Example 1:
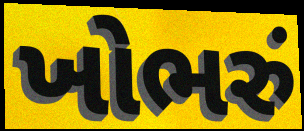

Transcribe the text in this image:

ખોભરું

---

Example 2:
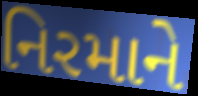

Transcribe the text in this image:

નિરમાને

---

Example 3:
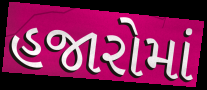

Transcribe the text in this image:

હજારોમાં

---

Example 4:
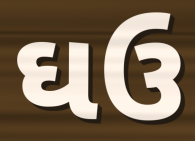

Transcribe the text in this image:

ઘઉ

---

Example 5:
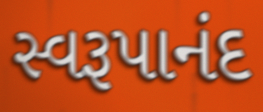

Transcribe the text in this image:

સ્વરૂપાનંદ